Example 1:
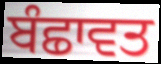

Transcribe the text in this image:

ਬੰਛਾਵਤ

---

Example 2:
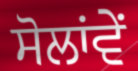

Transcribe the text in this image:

ਸੋਲਾਂਵੇਂ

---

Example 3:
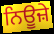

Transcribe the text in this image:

ਨਿਊਜ਼ੇ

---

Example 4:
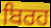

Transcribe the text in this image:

ਬਿਰਹ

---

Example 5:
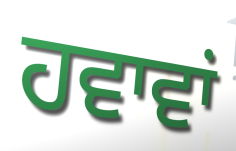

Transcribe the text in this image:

ਹਵਾਵਾਂ